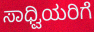
ಸಾಧ್ವಿಯರಿಗೆ